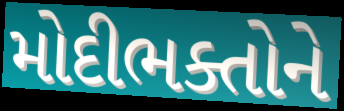
મોદીભક્તોને